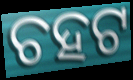
ଚହଟ